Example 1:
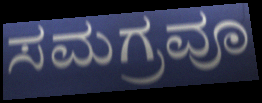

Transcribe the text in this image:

ಸಮಗ್ರವೂ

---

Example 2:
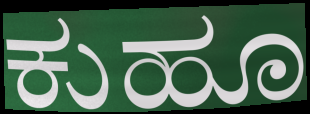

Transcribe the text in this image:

ಕುಹೂ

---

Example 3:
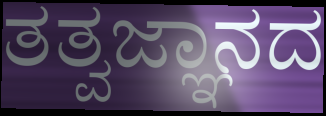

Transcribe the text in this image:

ತತ್ವಜ್ಞಾನದ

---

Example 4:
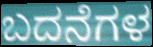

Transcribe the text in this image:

ಬದನೆಗಳ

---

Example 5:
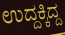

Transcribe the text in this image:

ಉದ್ದಕ್ಕಿದ್ದ